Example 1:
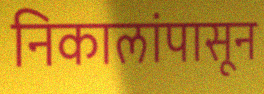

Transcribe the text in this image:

निकालांपासून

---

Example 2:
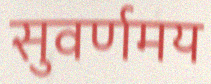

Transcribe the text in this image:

सुवर्णमय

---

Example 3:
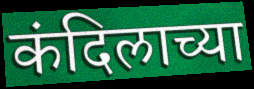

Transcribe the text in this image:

कंदिलाच्या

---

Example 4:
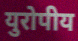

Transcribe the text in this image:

युरोपीय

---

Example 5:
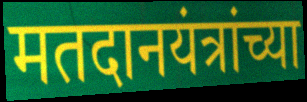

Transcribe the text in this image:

मतदानयंत्रांच्या